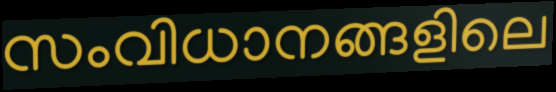
സംവിധാനങ്ങളിലെ